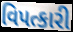
વિપત્કારી